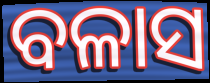
ବଳାସ